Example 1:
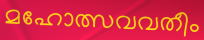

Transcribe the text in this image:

മഹോത്സവവതീം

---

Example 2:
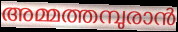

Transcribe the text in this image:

അമ്മത്തമ്പുരാൻ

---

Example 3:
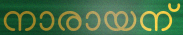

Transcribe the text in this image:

നാരായന്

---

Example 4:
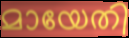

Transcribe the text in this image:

മായേതി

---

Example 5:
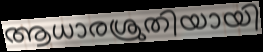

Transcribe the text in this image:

ആധാരശ്രുതിയായി